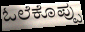
ಓಲೆಕೊಪ್ಪು